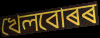
খেলবোৰৰ